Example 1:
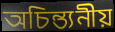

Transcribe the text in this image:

অচিন্ত্যনীয়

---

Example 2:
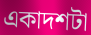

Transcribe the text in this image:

একাদশটা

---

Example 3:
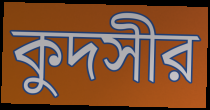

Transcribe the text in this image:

কুদসীর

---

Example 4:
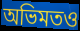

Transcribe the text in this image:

অভিমতও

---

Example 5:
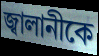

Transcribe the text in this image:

জ্বালানীকে